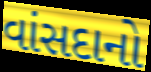
વાંસદાનો